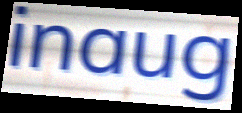
inaug